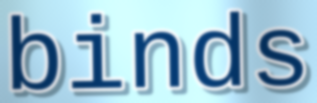
binds